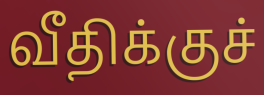
வீதிக்குச்